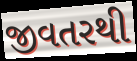
જીવતરથી